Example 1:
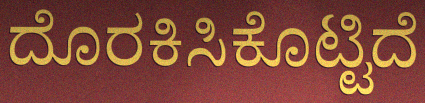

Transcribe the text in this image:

ದೊರಕಿಸಿಕೊಟ್ಟಿದೆ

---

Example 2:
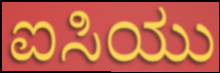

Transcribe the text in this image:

ಐಸಿಯು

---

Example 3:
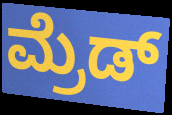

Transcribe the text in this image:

ಮ್ರೆಡ್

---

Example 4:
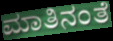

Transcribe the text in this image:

ಮಾತಿನಂತೆ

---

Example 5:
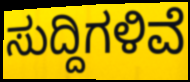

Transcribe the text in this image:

ಸುದ್ದಿಗಳಿವೆ